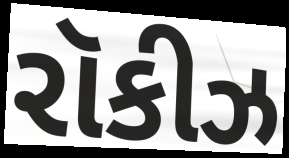
રૉકીઝ